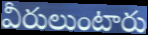
వీరులుంటారు